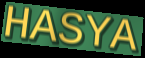
HASYA